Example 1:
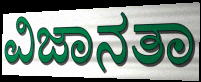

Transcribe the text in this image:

ವಿಜಾನತಾ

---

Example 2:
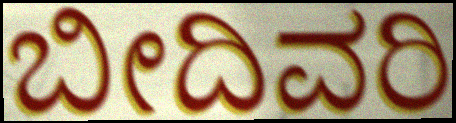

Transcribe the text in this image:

ಬೀದಿವರಿ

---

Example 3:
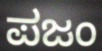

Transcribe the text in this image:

ಪಜಂ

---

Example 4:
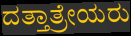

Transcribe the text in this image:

ದತ್ತಾತ್ರೇಯರು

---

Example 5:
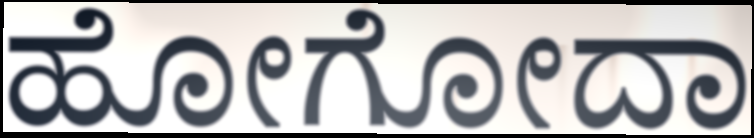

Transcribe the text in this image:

ಹೋಗೋದಾ